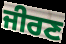
ਜੀਰਣ